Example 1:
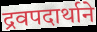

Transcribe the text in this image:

द्रवपदार्थाने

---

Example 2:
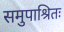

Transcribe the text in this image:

समुपाश्रितः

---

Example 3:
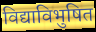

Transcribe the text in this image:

विद्याविभुषित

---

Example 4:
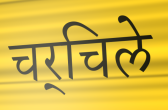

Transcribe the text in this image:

चर्चिले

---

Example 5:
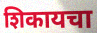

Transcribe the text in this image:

शिकायचा